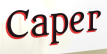
Caper